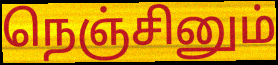
நெஞ்சினும்